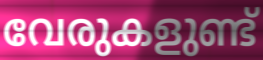
വേരുകളുണ്ട്